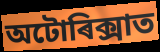
অটোৰিক্সাত